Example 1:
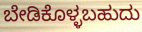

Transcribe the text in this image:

ಬೇಡಿಕೊಳ್ಳಬಹುದು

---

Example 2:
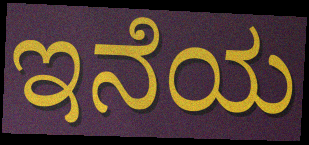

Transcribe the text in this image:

ಇನೆಯ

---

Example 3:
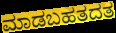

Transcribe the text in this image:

ಮಾಡಬಹತದತ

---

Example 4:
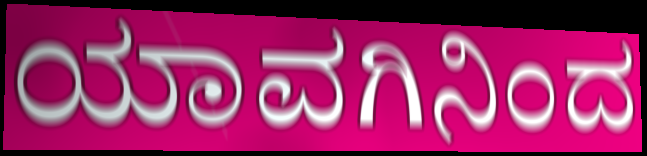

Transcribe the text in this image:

ಯಾವಗಿನಿಂದ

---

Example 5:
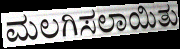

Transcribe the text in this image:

ಮಲಗಿಸಲಾಯಿತು